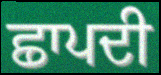
ਛਾਪਦੀ